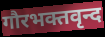
गौरभक्तवृन्द